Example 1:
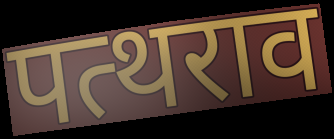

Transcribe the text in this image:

पत्थराव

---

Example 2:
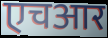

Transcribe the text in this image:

एचआर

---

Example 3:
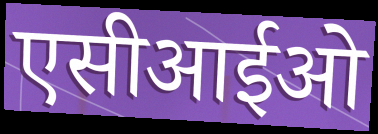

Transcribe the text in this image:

एसीआईओ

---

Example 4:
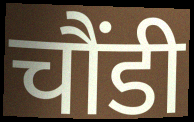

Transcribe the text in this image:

चौंडी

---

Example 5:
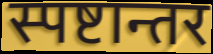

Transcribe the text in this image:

स्पष्टान्तर